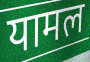
यामल